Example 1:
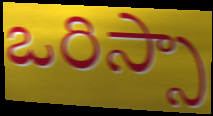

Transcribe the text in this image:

ఒరిస్సా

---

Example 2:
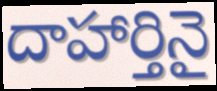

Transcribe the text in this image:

దాహార్తినై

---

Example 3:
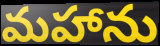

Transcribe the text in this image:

మహాను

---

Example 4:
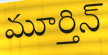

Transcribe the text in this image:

మూర్తిన్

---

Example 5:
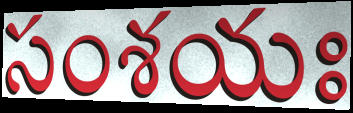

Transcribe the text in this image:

సంశయః